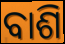
ବାଶି